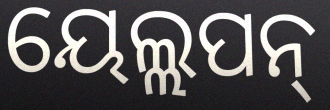
ୟେଲ୍ଲପନ୍